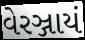
વેરઞ્જાયં